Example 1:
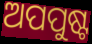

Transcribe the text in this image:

ଅପପୁଷ୍ଟ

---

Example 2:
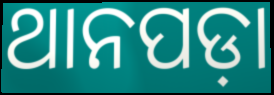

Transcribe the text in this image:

ଥାନପଡ଼ା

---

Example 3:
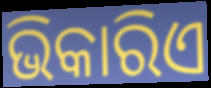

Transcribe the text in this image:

ଭିକାରିଏ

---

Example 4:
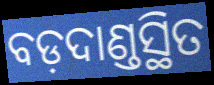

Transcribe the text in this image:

ବଡ଼ଦାଣ୍ଡସ୍ଥିତ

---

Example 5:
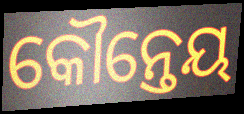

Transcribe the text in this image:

କୌନ୍ତେୟ